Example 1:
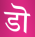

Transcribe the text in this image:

डॊ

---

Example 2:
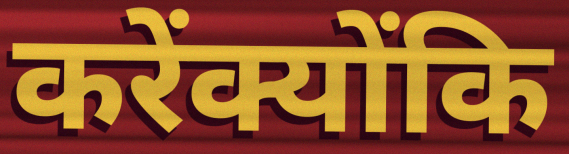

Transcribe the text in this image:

करेंक्योंकि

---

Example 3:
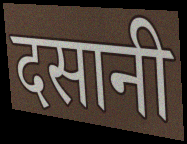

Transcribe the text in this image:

दसानी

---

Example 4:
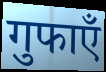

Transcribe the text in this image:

गुफाएँ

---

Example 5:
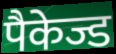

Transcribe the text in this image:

पैकेज्ड